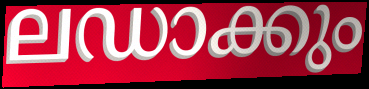
ലഡാക്കും